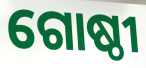
ଗୋଷ୍ଠୀ